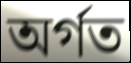
অৰ্গত